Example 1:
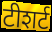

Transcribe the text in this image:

टीशर्ट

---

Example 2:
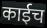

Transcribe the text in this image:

काईच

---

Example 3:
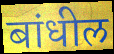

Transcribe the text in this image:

बांधील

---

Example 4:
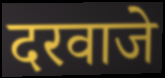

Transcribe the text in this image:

दरवाजे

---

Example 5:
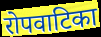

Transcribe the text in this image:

रोपवाटिका